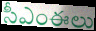
సీఎంఈలు